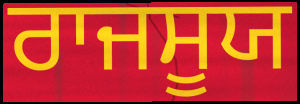
ਰਾਜਸੂਯ